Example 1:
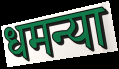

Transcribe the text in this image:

धमन्या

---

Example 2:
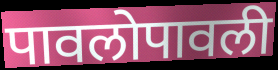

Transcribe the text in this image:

पावलोपावली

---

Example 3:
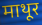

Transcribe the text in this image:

माथूर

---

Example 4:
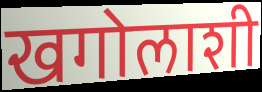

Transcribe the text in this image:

खगोलाशी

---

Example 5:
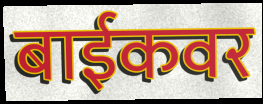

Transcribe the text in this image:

बाईकवर